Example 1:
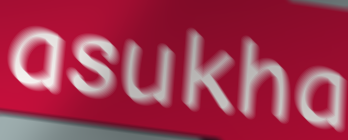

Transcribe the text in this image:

asukha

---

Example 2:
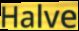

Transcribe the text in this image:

Halve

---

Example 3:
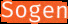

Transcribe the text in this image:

Sogen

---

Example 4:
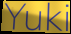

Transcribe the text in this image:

Yuki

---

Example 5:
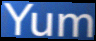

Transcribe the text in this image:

Yum